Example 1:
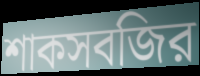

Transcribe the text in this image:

শাকসবজির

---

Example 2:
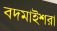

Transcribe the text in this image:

বদমাইশরা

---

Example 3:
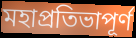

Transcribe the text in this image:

মহাপ্রতিভাপূর্ণ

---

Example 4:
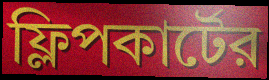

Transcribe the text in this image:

ফ্লিপকার্টের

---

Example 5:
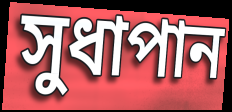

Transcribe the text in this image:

সুধাপান